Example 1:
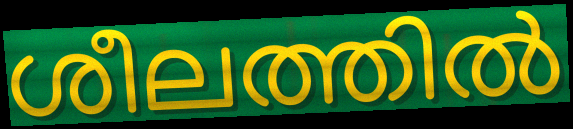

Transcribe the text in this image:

ശീലത്തിൽ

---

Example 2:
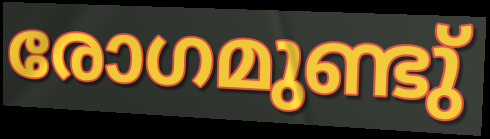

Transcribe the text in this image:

രോഗമുണ്ടു്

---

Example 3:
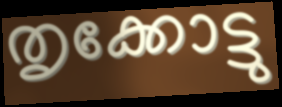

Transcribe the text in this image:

തൃക്കോട്ടു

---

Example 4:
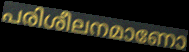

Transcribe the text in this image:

പരിശീലനമാണോ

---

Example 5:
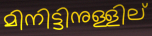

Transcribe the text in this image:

മിനിട്ടിനുള്ളില്